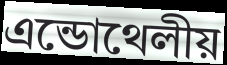
এন্ডোথেলীয়